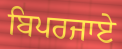
ਬਿਪਰਜਾਏ